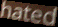
hated